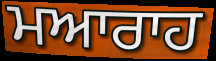
ਮਆਰਾਹ